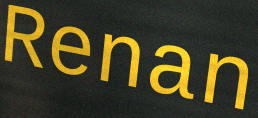
Renan